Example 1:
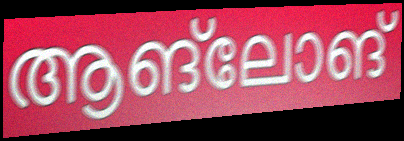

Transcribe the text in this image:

ആങ്‌ലോങ്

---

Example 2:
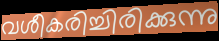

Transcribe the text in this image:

വശീകരിച്ചിരിക്കുന്നു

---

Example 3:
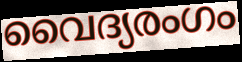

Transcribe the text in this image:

വൈദ്യരംഗം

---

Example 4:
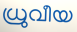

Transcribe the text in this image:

ധ്രുവീയ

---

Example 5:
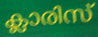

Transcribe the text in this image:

ക്ലാരിസ്